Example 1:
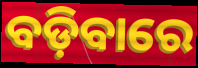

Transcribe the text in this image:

ବଡ଼ିବାରେ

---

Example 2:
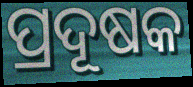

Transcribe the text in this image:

ପ୍ରଦୂଷକ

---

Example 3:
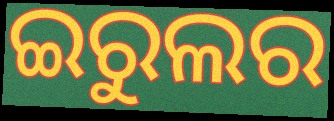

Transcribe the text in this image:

ଇରୁଲର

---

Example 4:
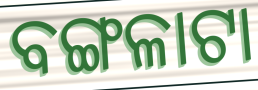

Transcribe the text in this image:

ବଙ୍ଗଳାଟା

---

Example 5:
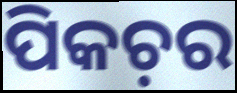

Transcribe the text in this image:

ପିକଚ଼ର